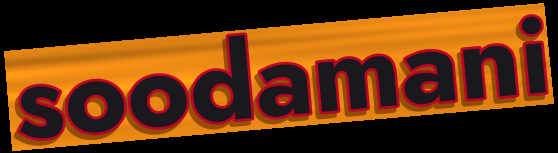
soodamani